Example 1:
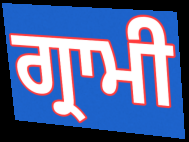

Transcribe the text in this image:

ਗ੍ਰਾਮੀ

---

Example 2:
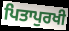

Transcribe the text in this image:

ਪਿਤਾਪੁਰਖੀ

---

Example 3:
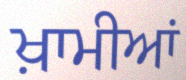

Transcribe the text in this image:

ਖ਼ਾਮੀਆਂ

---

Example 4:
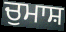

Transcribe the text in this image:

ਚੁਮਾਸ਼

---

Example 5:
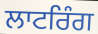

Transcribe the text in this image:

ਲਾਟਰਿੰਗ